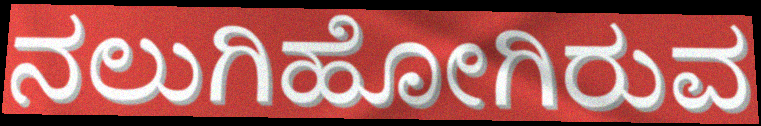
ನಲುಗಿಹೋಗಿರುವ